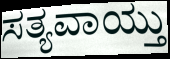
ಸತ್ಯವಾಯ್ತು